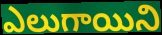
ఎలుగాయిని